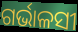
ଗର୍ଭାଳସୀ